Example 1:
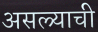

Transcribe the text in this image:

असल्याची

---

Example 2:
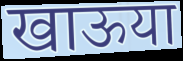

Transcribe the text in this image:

खाऊया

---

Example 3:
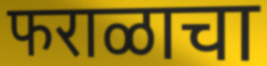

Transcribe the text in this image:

फराळाचा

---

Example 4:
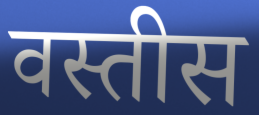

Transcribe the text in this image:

वस्तीस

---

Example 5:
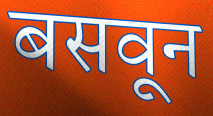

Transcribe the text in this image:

बसवून